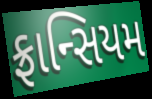
ફ્રાન્સિયમ